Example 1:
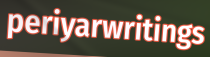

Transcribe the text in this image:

periyarwritings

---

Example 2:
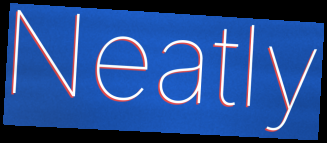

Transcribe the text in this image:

Neatly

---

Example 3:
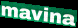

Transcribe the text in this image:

mavina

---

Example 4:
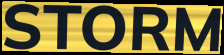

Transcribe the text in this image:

STORM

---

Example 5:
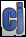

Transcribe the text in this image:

cj